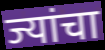
ज्यांचा